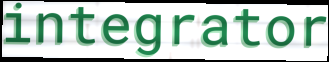
integrator